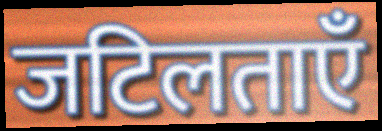
जटिलताएँ